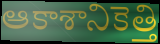
ఆకాశానికెత్తి